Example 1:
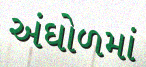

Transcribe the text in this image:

અંઘોળમાં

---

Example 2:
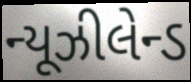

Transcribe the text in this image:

ન્યૂઝીલેન્ડ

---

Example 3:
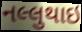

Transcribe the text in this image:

નલ્લુથાઇ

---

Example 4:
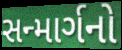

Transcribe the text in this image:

સન્માર્ગનો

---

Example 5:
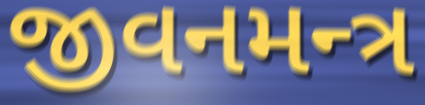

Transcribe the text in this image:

જીવનમન્ત્ર